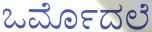
ಒರ್ಮೊದಲೆ